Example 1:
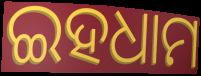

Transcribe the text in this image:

ଇହଧାମ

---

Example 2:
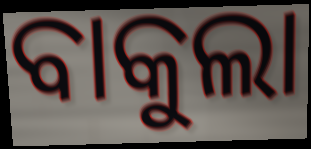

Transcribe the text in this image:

ବାକୁଲା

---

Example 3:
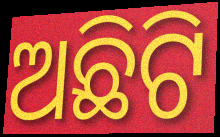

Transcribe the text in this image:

ଅଛିଟି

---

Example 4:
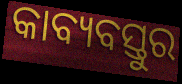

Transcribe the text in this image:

କାବ୍ୟବସ୍ତୁର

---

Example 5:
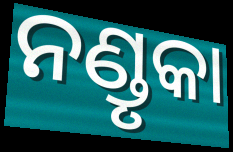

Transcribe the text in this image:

ନଣ୍ଡୃକା